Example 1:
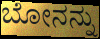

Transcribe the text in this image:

ಬೋನನ್ನು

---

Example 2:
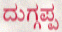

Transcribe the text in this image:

ದುಗ್ಗಪ್ಪ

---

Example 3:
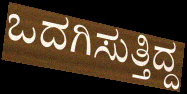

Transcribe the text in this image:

ಒದಗಿಸುತ್ತಿದ್ದ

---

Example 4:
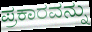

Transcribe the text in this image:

ಪ್ರಕಾರವನ್ನು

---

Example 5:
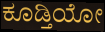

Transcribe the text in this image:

ಕೂಡ್ತಿಯೋ